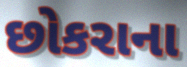
છોકરાના